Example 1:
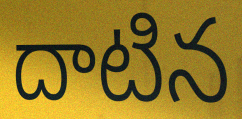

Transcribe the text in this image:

దాటిన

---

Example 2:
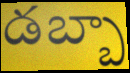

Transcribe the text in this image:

డబ్బా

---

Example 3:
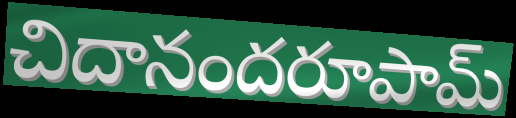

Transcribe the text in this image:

చిదానందరూపామ్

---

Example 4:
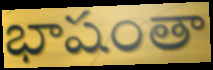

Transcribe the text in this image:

భాషంతా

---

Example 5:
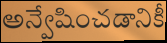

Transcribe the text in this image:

అన్వేషించడానికీ